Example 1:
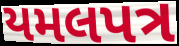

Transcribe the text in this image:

યમલપત્ર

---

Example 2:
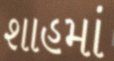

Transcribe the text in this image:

શાહમાં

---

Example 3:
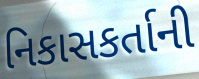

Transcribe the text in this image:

નિકાસકર્તાની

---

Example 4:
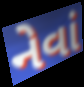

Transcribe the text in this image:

નેવાં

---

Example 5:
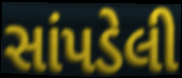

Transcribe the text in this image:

સાંપડેલી